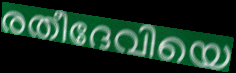
രതീദേവിയെ